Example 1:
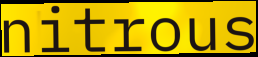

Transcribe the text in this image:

nitrous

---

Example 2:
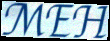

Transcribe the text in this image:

MEH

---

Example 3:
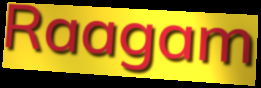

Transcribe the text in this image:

Raagam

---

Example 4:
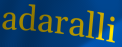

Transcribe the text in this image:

adaralli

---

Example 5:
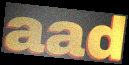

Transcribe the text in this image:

aad